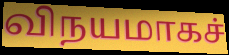
விநயமாகச்